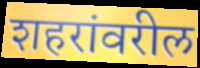
शहरांवरील